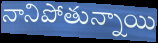
నానిపోతున్నాయి